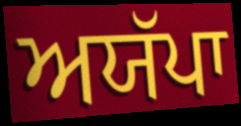
ਅਯੱਪਾ